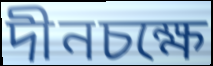
দীনচক্ষে